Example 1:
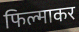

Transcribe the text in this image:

फिल्माकर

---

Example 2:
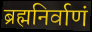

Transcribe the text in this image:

ब्रह्मनिर्वाणं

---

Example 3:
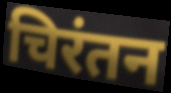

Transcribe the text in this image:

चिरंतन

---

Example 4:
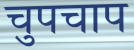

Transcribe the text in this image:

चुपचाप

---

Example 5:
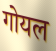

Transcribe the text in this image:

गोयल